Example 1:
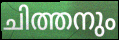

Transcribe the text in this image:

ചിത്തനും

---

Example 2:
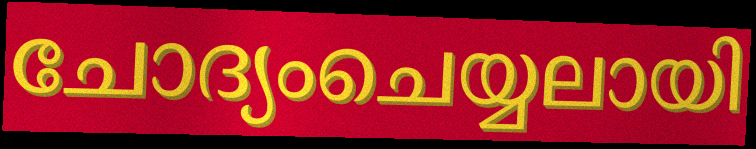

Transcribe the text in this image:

ചോദ്യംചെയ്യലായി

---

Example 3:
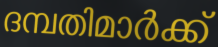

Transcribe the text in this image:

ദമ്പതിമാർക്ക്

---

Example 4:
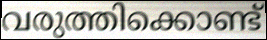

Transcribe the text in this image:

വരുത്തിക്കൊണ്ട്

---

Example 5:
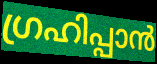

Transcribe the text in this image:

ഗ്രഹിപ്പാൻ